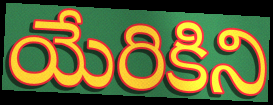
యేరికిని